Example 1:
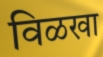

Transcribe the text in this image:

विळखा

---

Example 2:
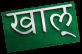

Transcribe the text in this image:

खाल्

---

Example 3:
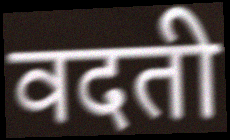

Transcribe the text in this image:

वदती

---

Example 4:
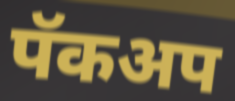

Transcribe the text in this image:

पॅकअप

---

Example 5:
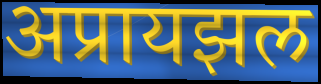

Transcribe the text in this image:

अप्रायझल